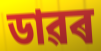
ডাৱৰ